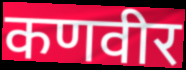
कणवीर